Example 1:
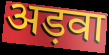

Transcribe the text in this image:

अड़वा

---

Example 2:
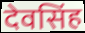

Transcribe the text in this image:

देवसिंह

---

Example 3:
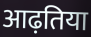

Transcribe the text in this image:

आढ़तिया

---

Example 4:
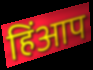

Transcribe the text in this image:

हिंआप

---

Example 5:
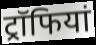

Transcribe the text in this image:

ट्रॉफियां